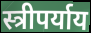
स्त्रीपर्याय